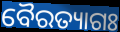
ବୈରତ୍ୟାଗଃ